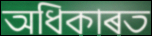
অধিকাৰত